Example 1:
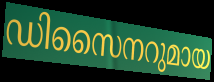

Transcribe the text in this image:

ഡിസൈനറുമായ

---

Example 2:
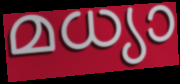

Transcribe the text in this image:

മധ്യാ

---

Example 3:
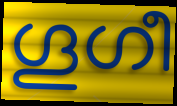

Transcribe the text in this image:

ഗൂഗീ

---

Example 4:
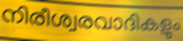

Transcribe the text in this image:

നിരീശ്വരവാദികളും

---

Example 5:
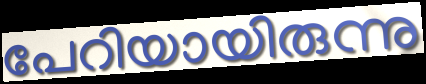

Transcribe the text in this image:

പേറിയായിരുന്നു